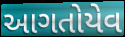
આગતોયેવ